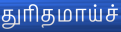
துரிதமாய்ச்